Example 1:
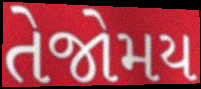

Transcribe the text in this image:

તેજોમય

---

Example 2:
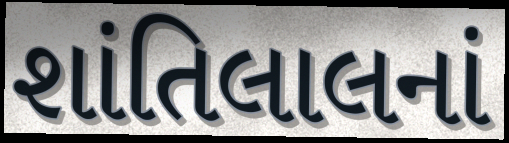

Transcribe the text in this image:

શાંતિલાલનાં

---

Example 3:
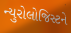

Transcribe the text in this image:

ન્યુરોલોજિસ્ટને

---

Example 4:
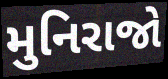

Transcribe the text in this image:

મુનિરાજો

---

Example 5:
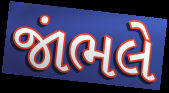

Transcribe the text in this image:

જાંભલે